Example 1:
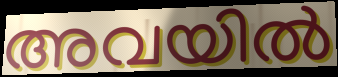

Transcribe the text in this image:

അവയിൽ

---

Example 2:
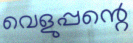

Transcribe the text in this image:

വെളുപ്പന്റെ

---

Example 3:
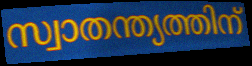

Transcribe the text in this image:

സ്വാതന്ത്യത്തിന്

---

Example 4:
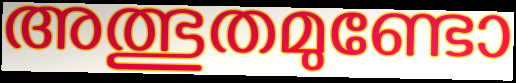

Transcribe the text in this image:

അത്ഭുതമുണ്ടോ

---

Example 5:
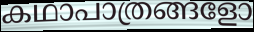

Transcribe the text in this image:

കഥാപാത്രങ്ങളോ